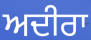
ਅਦੀਰਾ